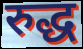
रुद्ध